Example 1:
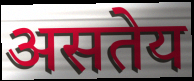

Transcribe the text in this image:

असतेय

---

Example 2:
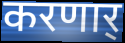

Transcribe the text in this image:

करणार्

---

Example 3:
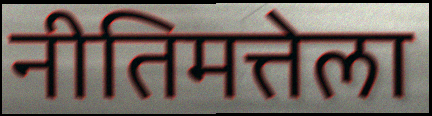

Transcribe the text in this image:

नीतिमत्तेला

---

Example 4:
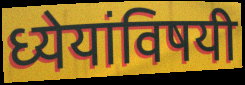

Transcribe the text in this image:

ध्येयांविषयी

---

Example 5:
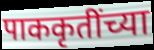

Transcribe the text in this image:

पाककृतींच्या